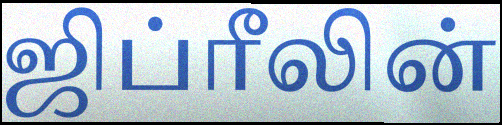
ஜிப்ரீலின்